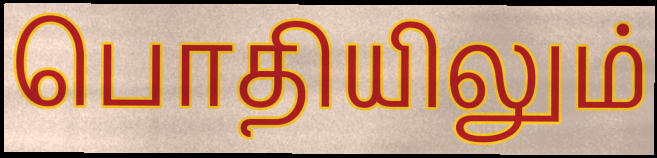
பொதியிலும்